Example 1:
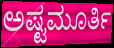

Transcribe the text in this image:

ಅಷ್ಟಮೂರ್ತಿ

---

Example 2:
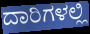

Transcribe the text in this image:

ದಾರಿಗಳಲ್ಲಿ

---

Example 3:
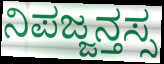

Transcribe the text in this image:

ನಿಪಜ್ಜನ್ತಸ್ಸ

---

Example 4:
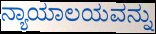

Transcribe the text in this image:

ನ್ಯಾಯಾಲಯವನ್ನು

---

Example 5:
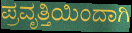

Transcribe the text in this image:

ಪ್ರವೃತ್ತಿಯಿಂದಾಗಿ